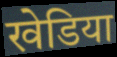
खेडिया